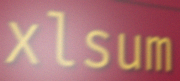
xlsum